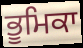
ਭੂਮਿਕਾ